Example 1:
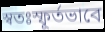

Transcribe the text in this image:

স্বতঃস্ফূৰ্তভাবে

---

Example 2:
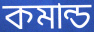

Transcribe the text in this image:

কমান্ড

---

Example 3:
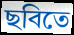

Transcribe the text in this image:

ছবিতে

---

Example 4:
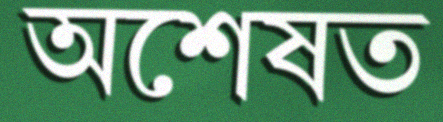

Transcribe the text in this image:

অশেষত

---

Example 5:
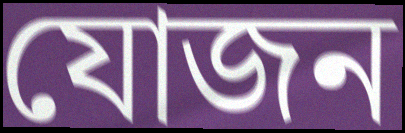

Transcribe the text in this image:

যোজন